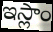
ఇస్లాం